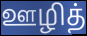
ஊழித்